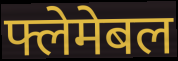
फ्लेमेबल